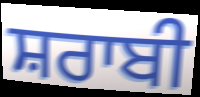
ਸ਼ਰਾਬੀ